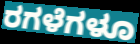
ರಗಳೆಗಳೂ